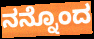
ನನ್ನೊಂದ